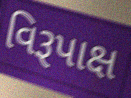
વિરૂપાક્ષ